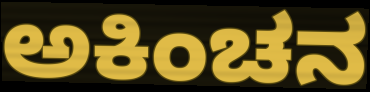
ಅಕಿಂಚನ